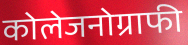
कोलेजनोग्राफी